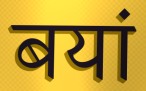
बयां